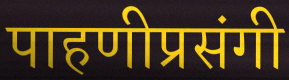
पाहणीप्रसंगी